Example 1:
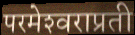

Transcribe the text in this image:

परमेश्वराप्रती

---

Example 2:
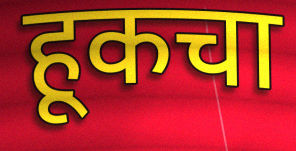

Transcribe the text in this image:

हूकचा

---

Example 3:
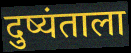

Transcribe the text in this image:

दुष्यंताला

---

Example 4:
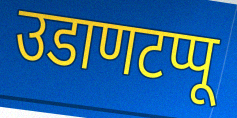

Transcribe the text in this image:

उडाणटप्पू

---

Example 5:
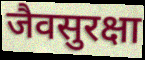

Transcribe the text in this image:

जैवसुरक्षा